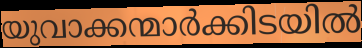
യുവാക്കന്മാർക്കിടയിൽ